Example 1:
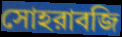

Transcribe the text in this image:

সোহরাবজি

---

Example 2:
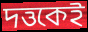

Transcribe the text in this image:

দত্তকেই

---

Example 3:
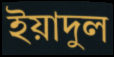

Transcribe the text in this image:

ইয়াদুল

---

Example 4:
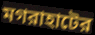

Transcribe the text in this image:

মগরাহাটের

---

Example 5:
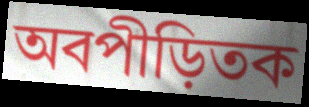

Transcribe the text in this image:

অবপীড়িতক